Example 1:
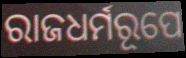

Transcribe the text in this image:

ରାଜଧର୍ମରୂପେ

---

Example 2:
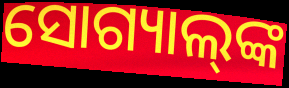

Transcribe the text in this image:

ସୋଗ୍ୟାଲ୍‌ଙ୍କ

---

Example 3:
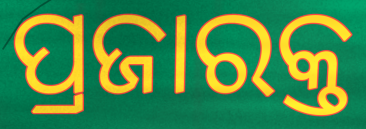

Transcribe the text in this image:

ପ୍ରଜାରକ୍ତ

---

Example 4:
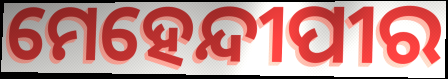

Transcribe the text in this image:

ମେହେନ୍ଦୀପୀର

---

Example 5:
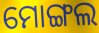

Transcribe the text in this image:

ମୋଙ୍ଗଲ